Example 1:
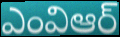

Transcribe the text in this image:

ఎంవిఆర్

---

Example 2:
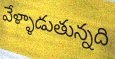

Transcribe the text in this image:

వేళ్ళాడుతున్నది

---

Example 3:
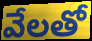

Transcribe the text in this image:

వేలతో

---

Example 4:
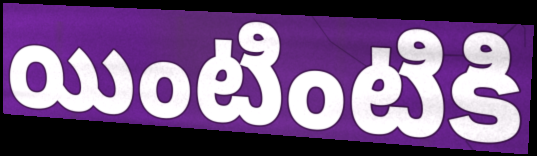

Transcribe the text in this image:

యింటింటికి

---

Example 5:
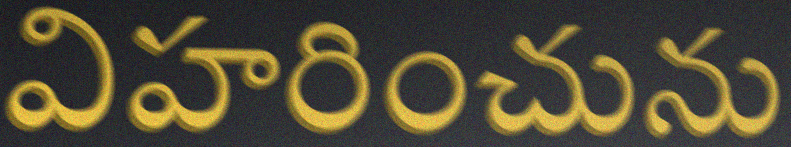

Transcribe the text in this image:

విహరించును